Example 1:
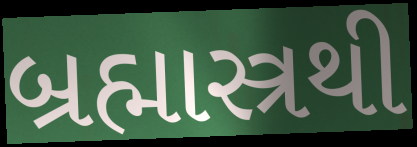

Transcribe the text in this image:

બ્રહ્માસ્ત્રથી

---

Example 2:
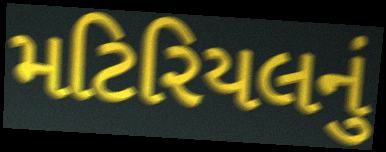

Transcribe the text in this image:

મટિરિયલનું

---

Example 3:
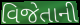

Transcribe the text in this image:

વિજેતાની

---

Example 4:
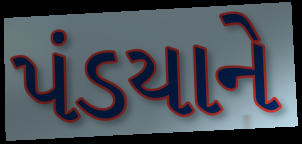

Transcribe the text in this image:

પંડયાને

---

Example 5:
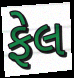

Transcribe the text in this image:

ફેલ